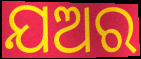
ଯଅର